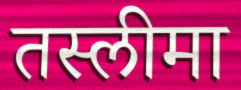
तस्लीमा